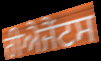
ਰੀਐਜੈਂਟਸ